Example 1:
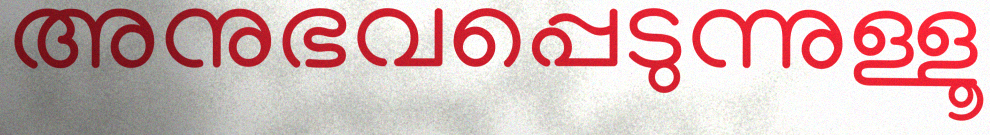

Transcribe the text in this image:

അനുഭവപ്പെടുന്നുള്ളൂ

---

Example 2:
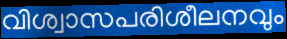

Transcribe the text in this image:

വിശ്വാസപരിശീലനവും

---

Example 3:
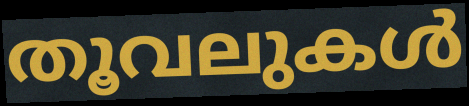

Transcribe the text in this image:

തൂവലുകൾ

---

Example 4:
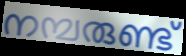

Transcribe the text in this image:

നമ്പരുണ്ട്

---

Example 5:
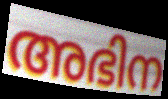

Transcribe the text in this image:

അഭിന